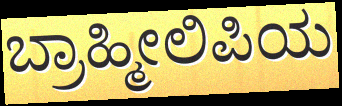
ಬ್ರಾಹ್ಮೀಲಿಪಿಯ